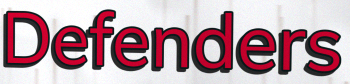
Defenders